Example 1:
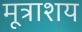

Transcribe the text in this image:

मूत्राशय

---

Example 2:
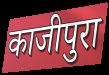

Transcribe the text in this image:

काजीपुरा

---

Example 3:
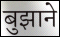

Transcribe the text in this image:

बुझाने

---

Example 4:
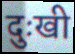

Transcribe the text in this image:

दुःखी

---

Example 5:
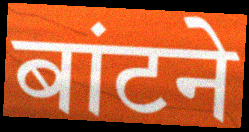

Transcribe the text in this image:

बांटने